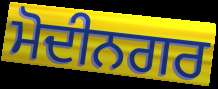
ਮੋਦੀਨਗਰ